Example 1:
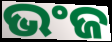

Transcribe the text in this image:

ଭଂଜ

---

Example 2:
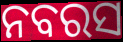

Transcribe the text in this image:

ନବରସ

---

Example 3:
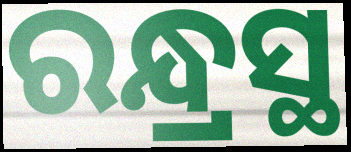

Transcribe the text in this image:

ରନ୍ଧ୍ରସ୍ଥ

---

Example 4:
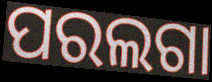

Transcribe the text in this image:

ପରଲଗା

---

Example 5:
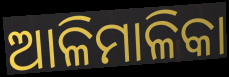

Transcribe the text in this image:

ଆଳିମାଳିକା